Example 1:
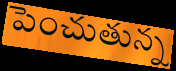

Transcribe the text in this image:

పెంచుతున్న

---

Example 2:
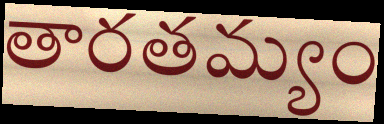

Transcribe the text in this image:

తారతమ్యం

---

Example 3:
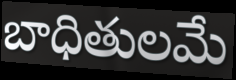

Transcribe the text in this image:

బాధితులమే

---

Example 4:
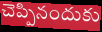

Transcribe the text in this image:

చెప్పినందుకు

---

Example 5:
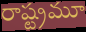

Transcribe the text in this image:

రాష్ట్రమూ